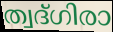
ത്വദ്ഗിരാ